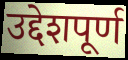
उद्देशपूर्ण